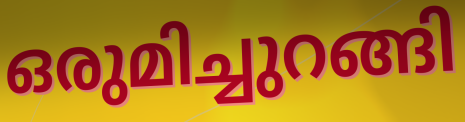
ഒരുമിച്ചുറങ്ങി